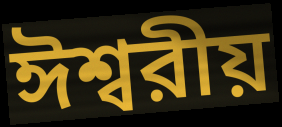
ঈশ্বরীয়